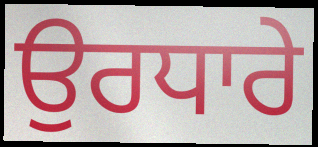
ਉਰਧਾਰੇ